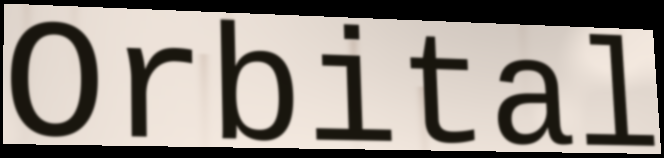
Orbital